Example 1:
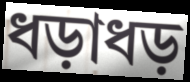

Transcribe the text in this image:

ধড়াধড়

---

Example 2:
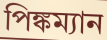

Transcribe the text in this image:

পিঙ্কম্যান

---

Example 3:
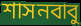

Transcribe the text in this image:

শাসনবাবু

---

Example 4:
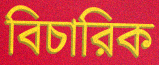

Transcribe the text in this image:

বিচারিক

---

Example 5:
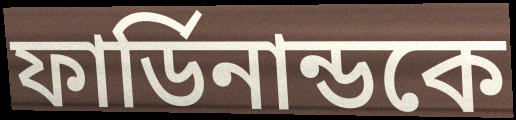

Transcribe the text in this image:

ফার্ডিনান্ডকে